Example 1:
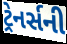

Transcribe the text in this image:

ટ્રેનર્સની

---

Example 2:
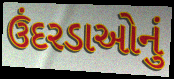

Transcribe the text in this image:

ઉંદરડાઓનું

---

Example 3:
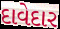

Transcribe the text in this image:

દાવેદાર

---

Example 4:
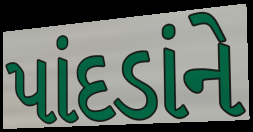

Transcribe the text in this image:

પાંદડાંને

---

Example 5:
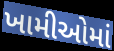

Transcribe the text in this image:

ખામીઓમાં